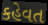
કહેવત